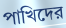
পাখিদের